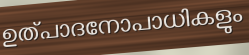
ഉത്പാദനോപാധികളും